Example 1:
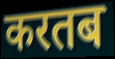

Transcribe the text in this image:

करतब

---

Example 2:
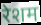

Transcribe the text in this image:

रेशम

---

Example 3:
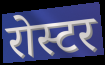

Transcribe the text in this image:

रोस्टर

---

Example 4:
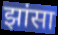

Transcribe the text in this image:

झांसा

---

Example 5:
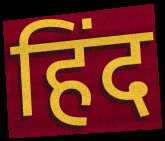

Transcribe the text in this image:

हिंद